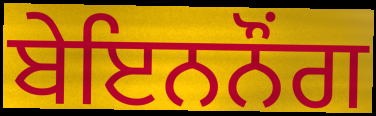
ਬੇਇਨਨੌੰਗ